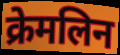
क्रेमलिन